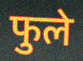
फुले